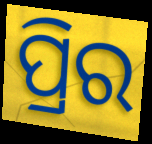
ପ୍ରିର